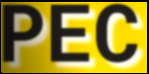
PEC